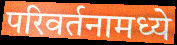
परिवर्तनामध्ये